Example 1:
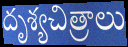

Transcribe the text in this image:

దృశ్యచిత్రాలు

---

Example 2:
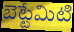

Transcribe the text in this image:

బెట్టేమిటి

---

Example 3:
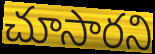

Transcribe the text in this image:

చూసారని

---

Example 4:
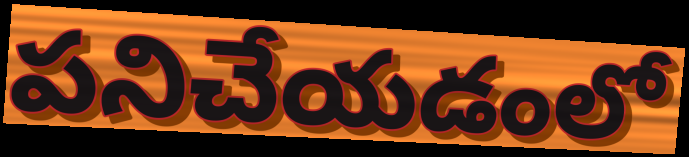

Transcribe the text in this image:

పనిచేయడంలో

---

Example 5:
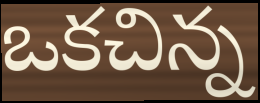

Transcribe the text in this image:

ఒకచిన్న